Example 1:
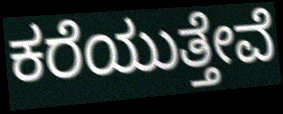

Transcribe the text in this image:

ಕರೆಯುತ್ತೇವೆ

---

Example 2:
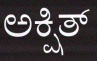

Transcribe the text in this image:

ಅಕ್ಷಿತ್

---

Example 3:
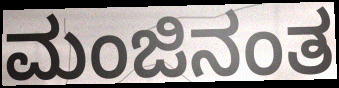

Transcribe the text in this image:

ಮಂಜಿನಂತ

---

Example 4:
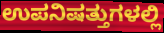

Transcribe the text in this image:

ಉಪನಿಷತ್ತುಗಳಲ್ಲಿ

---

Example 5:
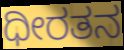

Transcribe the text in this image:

ಧೀರತನ